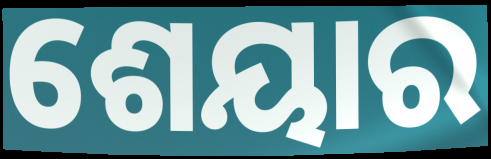
ଶେୟାର